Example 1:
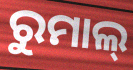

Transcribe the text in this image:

ରୁମାଲ୍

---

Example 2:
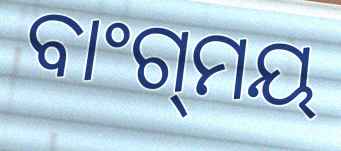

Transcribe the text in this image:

ବାଂଗ୍‌ମୟ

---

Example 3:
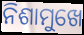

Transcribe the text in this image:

ନିଶାମୁଖେ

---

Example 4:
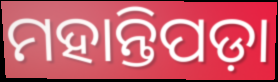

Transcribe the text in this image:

ମହାନ୍ତିପଡ଼ା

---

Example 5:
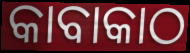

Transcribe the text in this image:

କାବାକାଠ